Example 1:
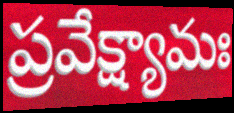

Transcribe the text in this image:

ప్రవేక్ష్యామః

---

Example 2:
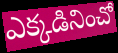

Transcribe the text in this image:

ఎక్కడినించో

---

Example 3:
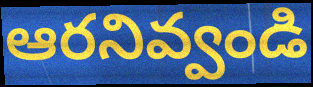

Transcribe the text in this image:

ఆరనివ్వండి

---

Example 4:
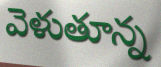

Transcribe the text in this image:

వెళుతూన్న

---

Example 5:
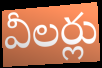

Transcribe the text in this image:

వీలర్లు